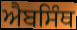
ਐਬਸਿੰਥ